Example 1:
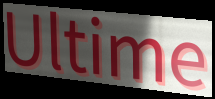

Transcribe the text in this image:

Ultime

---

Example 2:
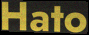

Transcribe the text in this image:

Hato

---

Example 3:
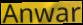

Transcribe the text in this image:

Anwar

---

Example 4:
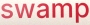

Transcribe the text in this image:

swamp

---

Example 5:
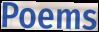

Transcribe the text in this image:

Poems